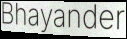
Bhayander